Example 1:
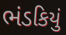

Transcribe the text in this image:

ભંડકિયું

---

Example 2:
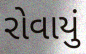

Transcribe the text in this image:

રોવાયું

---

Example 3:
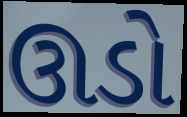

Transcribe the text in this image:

ઊડો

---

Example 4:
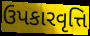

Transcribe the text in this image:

ઉપકારવૃત્તિ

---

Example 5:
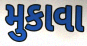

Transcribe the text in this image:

મુકાવા